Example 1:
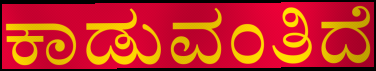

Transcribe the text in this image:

ಕಾಡುವಂತಿದೆ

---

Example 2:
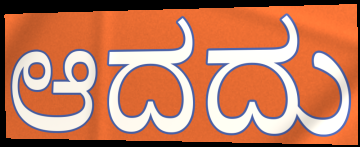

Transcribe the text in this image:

ಆದದು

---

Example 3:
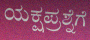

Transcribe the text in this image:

ಯಕ್ಷಪ್ರಶ್ನೆಗೆ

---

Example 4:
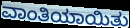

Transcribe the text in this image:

ವಾಂತಿಯಾಯಿತು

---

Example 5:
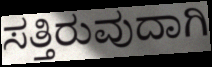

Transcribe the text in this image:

ಸತ್ತಿರುವುದಾಗಿ